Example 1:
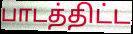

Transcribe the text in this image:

பாடத்திட்ட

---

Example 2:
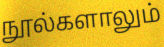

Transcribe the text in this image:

நூல்களாலும்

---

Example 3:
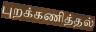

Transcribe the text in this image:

புறக்கணித்தல்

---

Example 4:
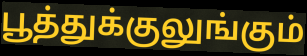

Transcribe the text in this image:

பூத்துக்குலுங்கும்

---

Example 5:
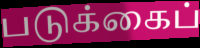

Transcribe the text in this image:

படுக்கைப்